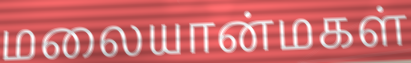
மலையான்மகள்